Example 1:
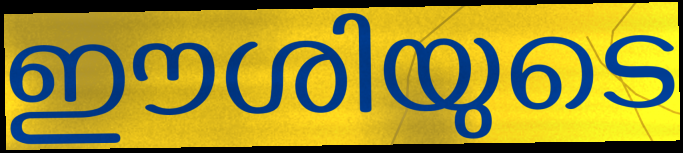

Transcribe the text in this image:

ഈശിയുടെ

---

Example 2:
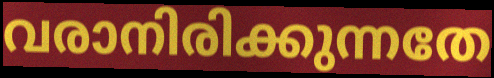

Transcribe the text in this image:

വരാനിരിക്കുന്നതേ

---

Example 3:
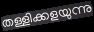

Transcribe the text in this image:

തള്ളിക്കളയുന്നു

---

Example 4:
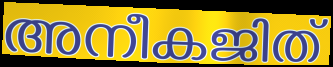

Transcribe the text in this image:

അനീകജിത്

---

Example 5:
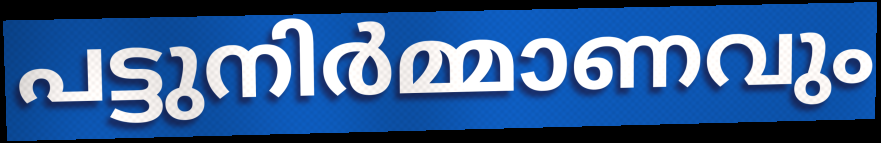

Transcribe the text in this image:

പട്ടുനിർമ്മാണവും